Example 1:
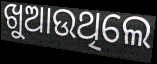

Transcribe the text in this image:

ଖୁଆଉଥିଲେ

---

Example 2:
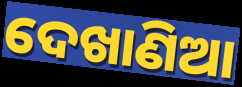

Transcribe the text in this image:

ଦେଖାଣିଆ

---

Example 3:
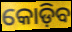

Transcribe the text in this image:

କୋଡ଼ିବ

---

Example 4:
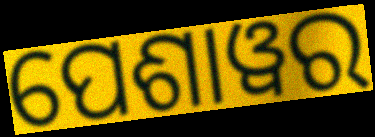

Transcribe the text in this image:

ପେଶାୱର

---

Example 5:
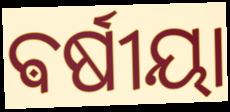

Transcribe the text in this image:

ଵର୍ଷୀୟା